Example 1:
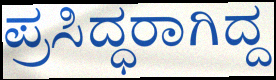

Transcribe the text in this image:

ಪ್ರಸಿದ್ಧರಾಗಿದ್ದ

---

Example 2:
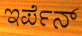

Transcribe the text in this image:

ಇರ್ಪೆನ್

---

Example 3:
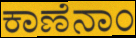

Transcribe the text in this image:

ಕಾಣೆನಾಂ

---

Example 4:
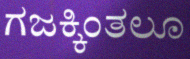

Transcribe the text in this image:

ಗಜಕ್ಕಿಂತಲೂ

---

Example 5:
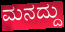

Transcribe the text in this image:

ಮನದ್ದು